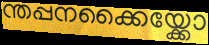
ന്തപ്പനക്കൈയ്ക്കോ